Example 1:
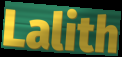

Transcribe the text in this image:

Lalith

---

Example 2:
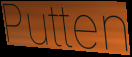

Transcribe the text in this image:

Putten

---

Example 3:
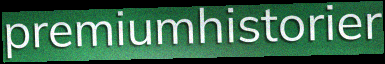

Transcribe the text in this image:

premiumhistorier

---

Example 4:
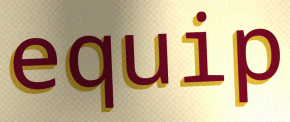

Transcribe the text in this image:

equip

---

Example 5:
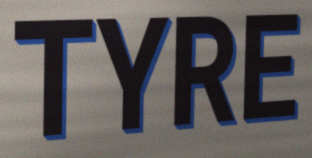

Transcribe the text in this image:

TYRE